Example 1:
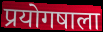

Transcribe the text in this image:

प्रयोगषाला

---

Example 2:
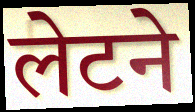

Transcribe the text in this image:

लेटने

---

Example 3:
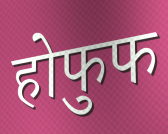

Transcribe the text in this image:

होफुफ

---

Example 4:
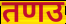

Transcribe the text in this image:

तणउ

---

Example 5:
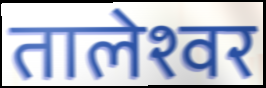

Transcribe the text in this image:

तालेश्वर